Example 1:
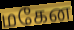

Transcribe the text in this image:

மகேன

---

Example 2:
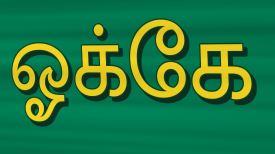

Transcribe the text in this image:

ஓக்கே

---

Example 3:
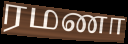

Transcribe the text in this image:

ரமணா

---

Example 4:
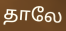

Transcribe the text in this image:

தாலே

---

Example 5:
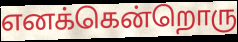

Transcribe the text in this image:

எனக்கென்றொரு